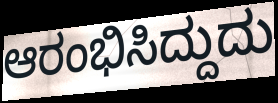
ಆರಂಭಿಸಿದ್ದುದು